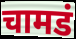
चामडं